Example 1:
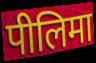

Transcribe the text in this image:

पीलिमा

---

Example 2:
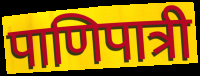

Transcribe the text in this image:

पाणिपात्री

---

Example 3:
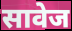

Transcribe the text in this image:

सावेज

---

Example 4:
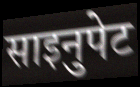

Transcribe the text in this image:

साइनुपेट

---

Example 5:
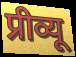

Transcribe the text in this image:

प्रीव्यू